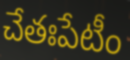
చేతఃపేటీం